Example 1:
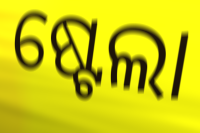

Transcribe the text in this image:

ଷ୍ଟେଲା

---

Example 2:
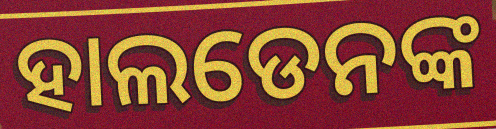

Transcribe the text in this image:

ହାଲଡେନଙ୍କ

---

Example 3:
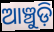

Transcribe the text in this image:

ଆଞ୍ଚୁଡ଼ି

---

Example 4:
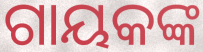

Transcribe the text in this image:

ଗାୟକଙ୍କ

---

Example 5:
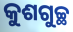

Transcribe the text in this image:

କୁଶଗୁଚ୍ଛ